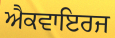
ਐਕਵਾਇਰਜ